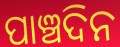
ପାଞ୍ଚଦିନ